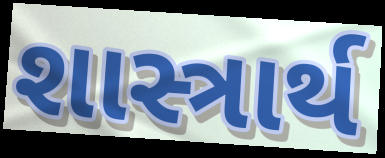
શાસ્ત્રાર્થ